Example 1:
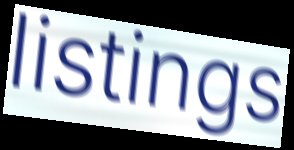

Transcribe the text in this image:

listings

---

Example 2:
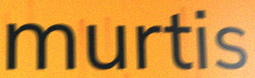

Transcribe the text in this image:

murtis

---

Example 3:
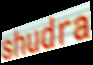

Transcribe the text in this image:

shudra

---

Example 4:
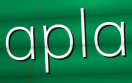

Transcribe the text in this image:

apla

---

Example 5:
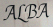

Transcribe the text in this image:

ALBA